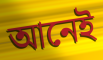
আনেই